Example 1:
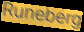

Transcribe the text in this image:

Runeberg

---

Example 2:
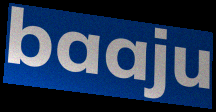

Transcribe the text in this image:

baaju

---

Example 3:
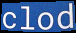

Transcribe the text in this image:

clod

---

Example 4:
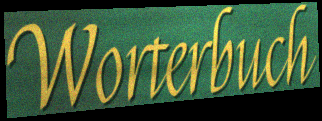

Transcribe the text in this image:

Worterbuch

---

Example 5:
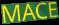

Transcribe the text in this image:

MACE